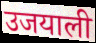
उजयाली